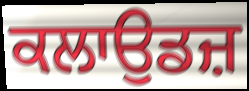
ਕਲਾਉਡਜ਼